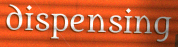
dispensing